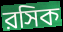
রসিক